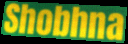
Shobhna